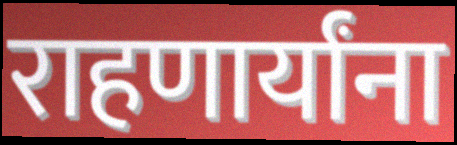
राहणार्यांना